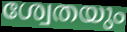
ശ്വേതയും